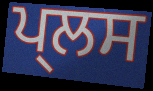
ਪ੍ਲਸ